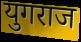
युगराज